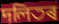
দলিতৰ